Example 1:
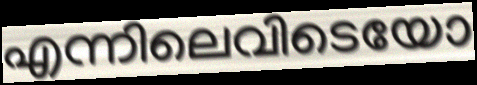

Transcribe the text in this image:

എന്നിലെവിടെയോ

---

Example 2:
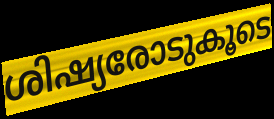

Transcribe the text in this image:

ശിഷ്യരോടുകൂടെ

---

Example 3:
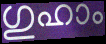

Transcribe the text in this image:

ഗുഹാം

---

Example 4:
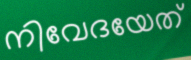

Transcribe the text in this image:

നിവേദയേത്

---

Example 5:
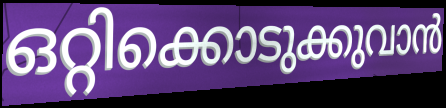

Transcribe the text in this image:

ഒറ്റിക്കൊടുക്കുവാൻ